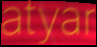
atyar